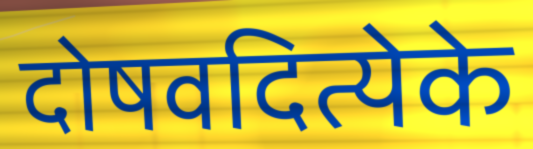
दोषवदित्येके